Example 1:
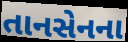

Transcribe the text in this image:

તાનસેનના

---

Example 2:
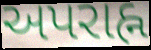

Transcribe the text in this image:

અપરાહ્ન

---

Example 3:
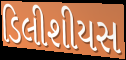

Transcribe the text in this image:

ડિલીશીયસ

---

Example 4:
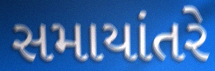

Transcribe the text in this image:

સમાયાંતરે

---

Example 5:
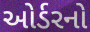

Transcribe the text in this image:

ઓર્ડરનો